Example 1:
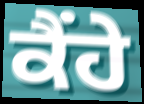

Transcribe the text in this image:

ਕੈਂਹੇ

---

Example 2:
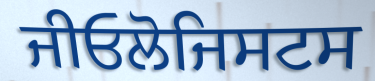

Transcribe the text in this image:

ਜੀਓਲੋਜਿਸਟਸ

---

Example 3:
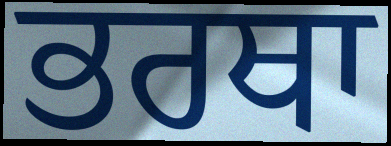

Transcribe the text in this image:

ਭਰਥਾ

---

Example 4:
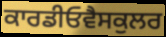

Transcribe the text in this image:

ਕਾਰਡੀਓਵੈਸਕੁਲਰ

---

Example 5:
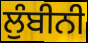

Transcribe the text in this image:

ਲੁੰਬੀਨੀ